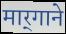
मार्गाने